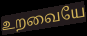
உறவையே